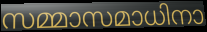
സമ്മാസമാധിനാ